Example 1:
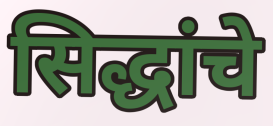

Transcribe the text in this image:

सिद्धांचे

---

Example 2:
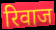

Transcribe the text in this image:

रिवाज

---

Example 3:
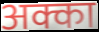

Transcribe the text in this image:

अक्का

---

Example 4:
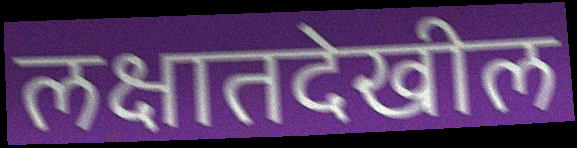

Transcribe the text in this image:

लक्षातदेखील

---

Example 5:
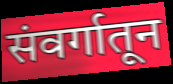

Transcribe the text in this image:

संवर्गातून